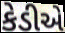
કેડીએ